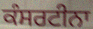
ਕੰਸਰਟੀਨਾ